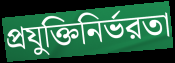
প্রযুক্তিনির্ভরতা